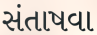
સંતાષવા